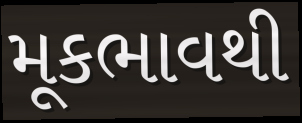
મૂકભાવથી